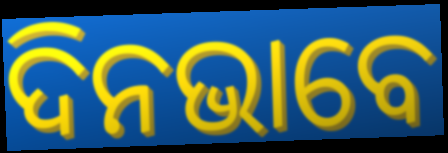
ଦିନଭାବେ